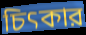
চিৎকার